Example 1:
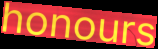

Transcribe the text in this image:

honours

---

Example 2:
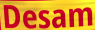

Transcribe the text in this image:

Desam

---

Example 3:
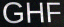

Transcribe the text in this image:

GHF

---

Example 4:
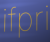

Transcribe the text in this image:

ifpri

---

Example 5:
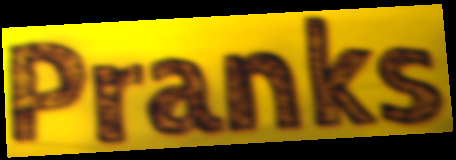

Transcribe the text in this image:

Pranks